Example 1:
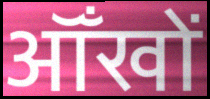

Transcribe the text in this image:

ऑँखों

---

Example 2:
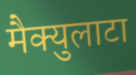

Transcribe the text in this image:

मैक्युलाटा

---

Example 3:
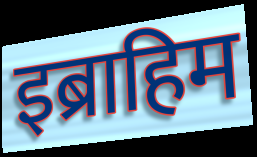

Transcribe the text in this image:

इब्राहिम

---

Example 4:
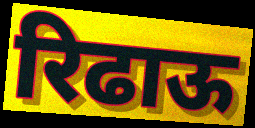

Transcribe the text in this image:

रिढाऊ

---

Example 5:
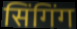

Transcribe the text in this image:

सिंगिंग